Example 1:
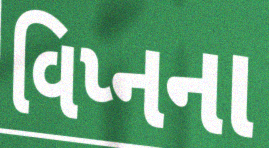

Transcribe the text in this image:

વિપ્નના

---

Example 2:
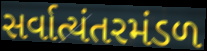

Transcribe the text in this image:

સર્વાત્યંતરમંડળ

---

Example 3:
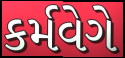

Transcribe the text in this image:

કર્મવેગે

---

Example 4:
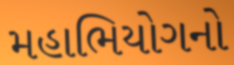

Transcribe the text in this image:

મહાભિયોગનો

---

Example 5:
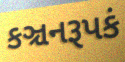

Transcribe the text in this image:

કઞ્ચનરૂપકં